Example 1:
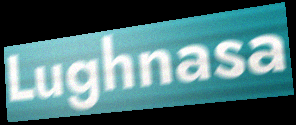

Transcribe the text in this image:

Lughnasa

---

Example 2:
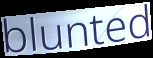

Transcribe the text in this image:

blunted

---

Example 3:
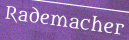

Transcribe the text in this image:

Rademacher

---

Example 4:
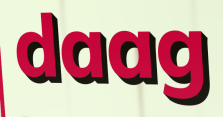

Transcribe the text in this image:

daag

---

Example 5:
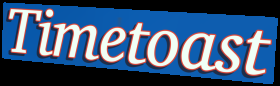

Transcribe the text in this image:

Timetoast